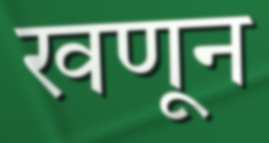
खणून